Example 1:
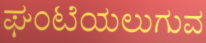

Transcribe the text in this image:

ಘಂಟೆಯಲುಗುವ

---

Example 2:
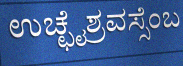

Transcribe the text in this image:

ಉಚ್ಛೈಶ್ರವಸ್ಸೆಂಬ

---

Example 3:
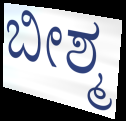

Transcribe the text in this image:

ಬೀಶ್ಮ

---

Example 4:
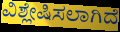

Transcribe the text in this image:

ವಿಶ್ಲೇಷಿಸಲಾಗಿದೆ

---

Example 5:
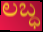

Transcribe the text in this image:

ಲಬ್ಧ